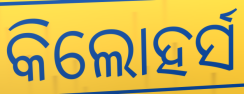
କିଲୋହର୍ସ